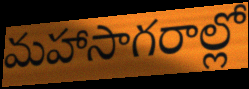
మహాసాగరాల్లో